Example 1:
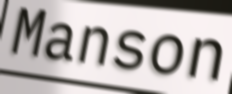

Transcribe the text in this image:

Manson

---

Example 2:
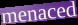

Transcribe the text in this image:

menaced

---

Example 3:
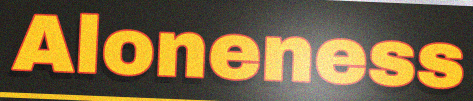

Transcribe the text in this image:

Aloneness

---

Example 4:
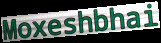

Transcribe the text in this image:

Moxeshbhai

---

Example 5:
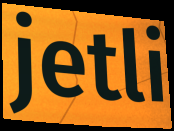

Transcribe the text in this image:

jetli